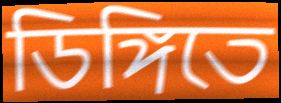
ডিঙ্গিতে